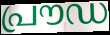
പ്രൗഡ